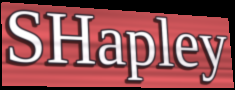
SHapley